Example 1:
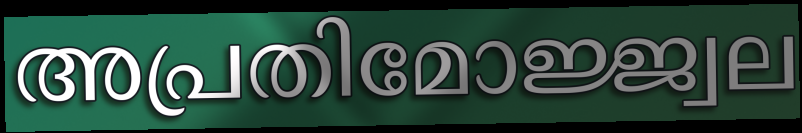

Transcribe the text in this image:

അപ്രതിമോജ്ജ്വല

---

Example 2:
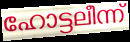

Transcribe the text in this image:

ഹോട്ടലീന്ന്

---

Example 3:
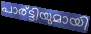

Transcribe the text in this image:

പാര്ട്ടിയുമായി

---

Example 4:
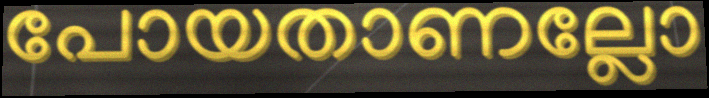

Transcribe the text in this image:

പോയതാണല്ലോ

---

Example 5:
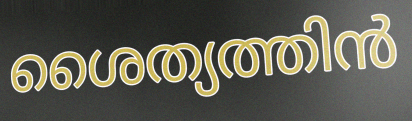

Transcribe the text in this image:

ശൈത്യത്തിൻ